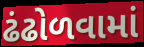
ઢંઢોળવામાં